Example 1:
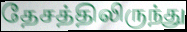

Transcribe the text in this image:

தேசத்திலிருந்து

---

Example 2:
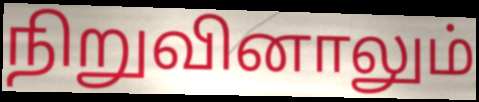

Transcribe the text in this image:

நிறுவினாலும்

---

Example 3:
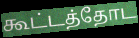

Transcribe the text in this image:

கூட்டத்தோட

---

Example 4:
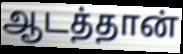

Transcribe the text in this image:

ஆடத்தான்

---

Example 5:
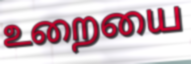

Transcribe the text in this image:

உறையை